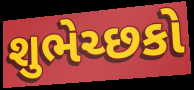
શુભેચ્છકો